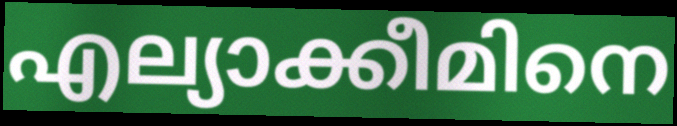
എല്യാക്കീമിനെ